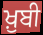
ਖ਼ੁਬੀ